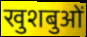
खुशबुओं